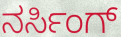
ನರ್ಸಿಂಗ್